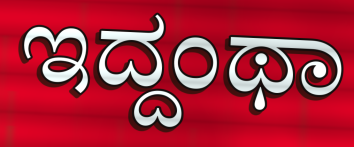
ಇದ್ದಂಥಾ